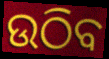
ଉଠିବ